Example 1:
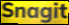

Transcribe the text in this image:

Snagit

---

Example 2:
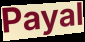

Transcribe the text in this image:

Payal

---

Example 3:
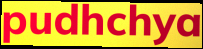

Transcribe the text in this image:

pudhchya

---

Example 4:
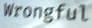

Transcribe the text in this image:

Wrongful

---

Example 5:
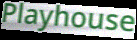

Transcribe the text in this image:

Playhouse